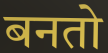
बनतो